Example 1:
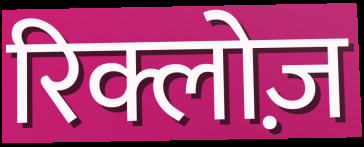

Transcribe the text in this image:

रिक्लोज़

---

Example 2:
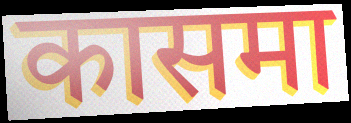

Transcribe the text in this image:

कासमा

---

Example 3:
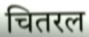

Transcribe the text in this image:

चितरल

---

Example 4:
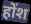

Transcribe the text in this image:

होंश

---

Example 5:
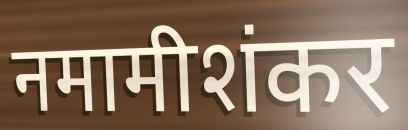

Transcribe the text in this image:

नमामीशंकर